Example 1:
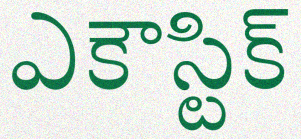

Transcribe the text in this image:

ఎకౌస్టిక్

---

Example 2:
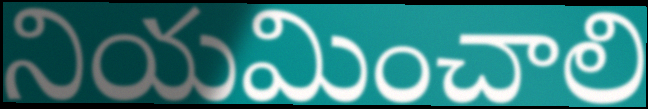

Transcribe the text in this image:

నియమించాలి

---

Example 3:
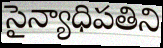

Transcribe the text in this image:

సైన్యాధిపతిని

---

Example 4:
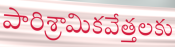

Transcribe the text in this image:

పారిశ్రామికవేత్తలకు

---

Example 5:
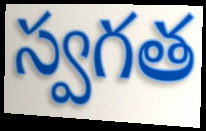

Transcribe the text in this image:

స్వగత